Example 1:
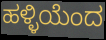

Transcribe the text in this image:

ಹಳ್ಳಿಯೆಂದ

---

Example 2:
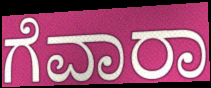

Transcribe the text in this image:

ಗೆವಾರಾ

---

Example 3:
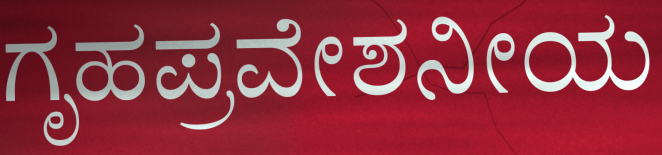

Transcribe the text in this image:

ಗೃಹಪ್ರವೇಶನೀಯ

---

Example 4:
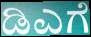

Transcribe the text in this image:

ಡಿಎಗೆ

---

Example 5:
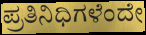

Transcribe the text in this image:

ಪ್ರತಿನಿಧಿಗಳೆಂದೇ